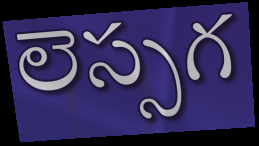
లెస్సగ